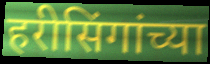
हरीसिंगांच्या